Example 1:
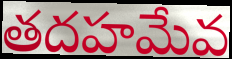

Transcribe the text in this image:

తదహమేవ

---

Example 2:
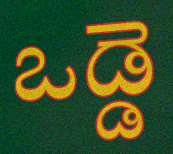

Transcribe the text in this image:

ఒడ్డె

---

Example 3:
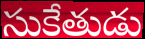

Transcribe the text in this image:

సుకేతుడు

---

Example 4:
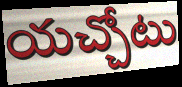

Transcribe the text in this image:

యచ్చోటు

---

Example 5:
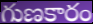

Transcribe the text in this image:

గుణకారం